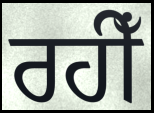
ਰਹੀਁ